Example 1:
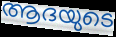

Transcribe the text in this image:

ആദയുടെ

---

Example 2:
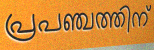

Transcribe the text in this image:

പ്രപഞ്ചത്തിന്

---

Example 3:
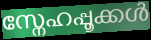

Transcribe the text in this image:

സ്നേഹപ്പൂക്കൾ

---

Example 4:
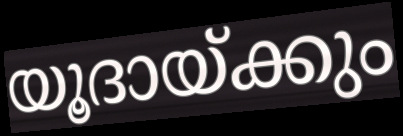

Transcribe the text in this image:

യൂദായ്ക്കും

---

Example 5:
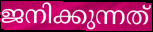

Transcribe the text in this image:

ജനിക്കുന്നത്